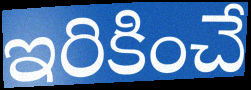
ఇరికించే